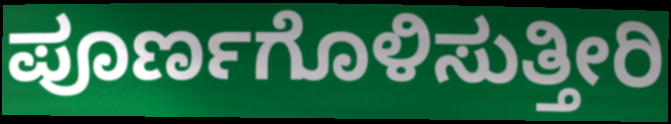
ಪೂರ್ಣಗೊಳಿಸುತ್ತೀರಿ